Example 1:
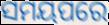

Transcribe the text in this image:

ସମୟପରେ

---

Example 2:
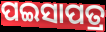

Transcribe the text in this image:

ପଇସାପତ୍ର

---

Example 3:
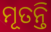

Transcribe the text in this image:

ମୂତନ୍ତି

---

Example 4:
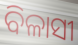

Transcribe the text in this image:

ବିଳାସୀ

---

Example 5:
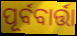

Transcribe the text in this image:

ପୂର୍ବବାର୍ତ୍ତା